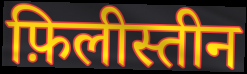
फ़िलीस्तीन